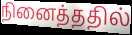
நினைத்ததில்